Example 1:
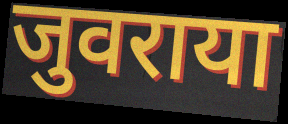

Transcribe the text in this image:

जुवराया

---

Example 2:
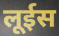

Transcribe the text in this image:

लूईस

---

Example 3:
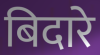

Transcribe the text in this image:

बिदारे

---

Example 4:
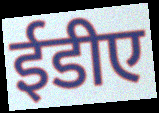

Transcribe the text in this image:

ईडीए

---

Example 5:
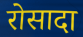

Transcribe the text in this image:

रोसादा